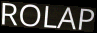
ROLAP